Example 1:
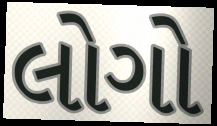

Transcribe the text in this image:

લોગો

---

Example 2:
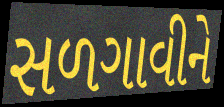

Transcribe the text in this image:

સળગાવીને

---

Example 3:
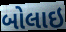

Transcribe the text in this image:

બોલાઇ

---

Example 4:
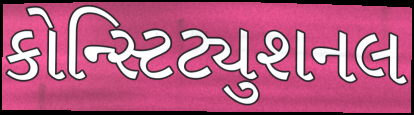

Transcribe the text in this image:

કોન્સ્ટિટ્યુશનલ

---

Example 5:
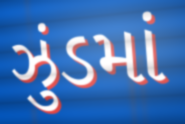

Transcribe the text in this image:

ઝુંડમાં